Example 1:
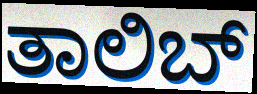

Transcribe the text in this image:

ತಾಲಿಬ್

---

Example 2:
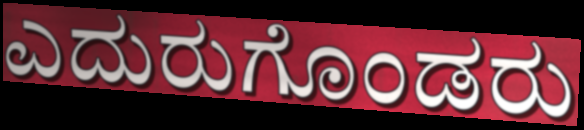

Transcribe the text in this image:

ಎದುರುಗೊಂಡರು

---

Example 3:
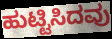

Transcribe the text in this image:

ಹುಟ್ಟಿಸಿದವು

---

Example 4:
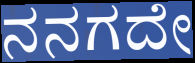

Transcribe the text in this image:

ನನಗದೇ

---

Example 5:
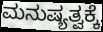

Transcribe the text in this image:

ಮನುಷ್ಯತ್ವಕ್ಕೆ